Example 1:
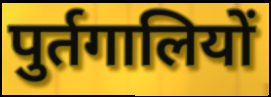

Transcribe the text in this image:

पुर्तगालियों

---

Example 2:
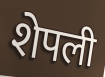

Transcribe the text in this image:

शेपली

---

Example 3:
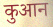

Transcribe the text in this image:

कुआन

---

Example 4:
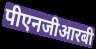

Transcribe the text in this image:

पीएनजीआरबी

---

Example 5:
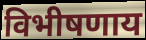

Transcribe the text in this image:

विभीषणाय